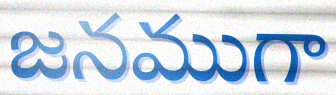
జనముగా